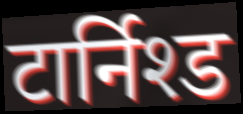
टार्निश्ड